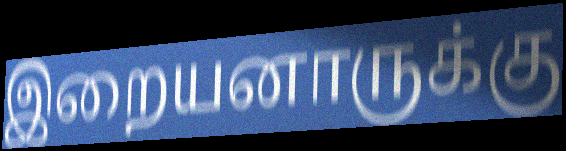
இறையனாருக்கு